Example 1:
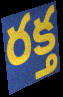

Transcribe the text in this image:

రక్త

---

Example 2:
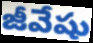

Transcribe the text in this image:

జీవేషు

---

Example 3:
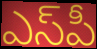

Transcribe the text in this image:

ఎస్‌పీ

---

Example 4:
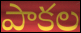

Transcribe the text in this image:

పాకల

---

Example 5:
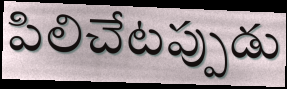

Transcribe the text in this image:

పిలిచేటప్పుడు